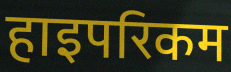
हाइपरिकम